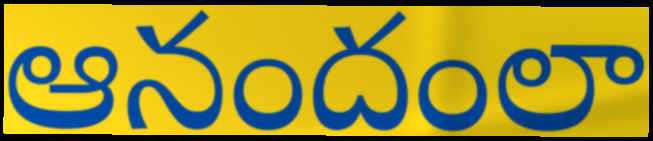
ఆనందంలా